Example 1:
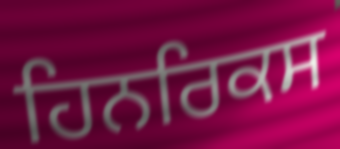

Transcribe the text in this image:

ਹਿਨਰਿਕਸ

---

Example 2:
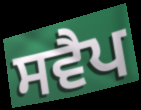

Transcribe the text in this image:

ਸਵੈਪ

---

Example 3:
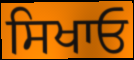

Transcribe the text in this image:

ਸਿਖਾਓ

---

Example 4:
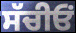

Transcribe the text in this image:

ਸੱਚੀਓਂ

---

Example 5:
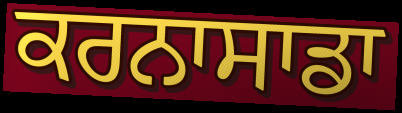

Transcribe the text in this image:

ਕਰਨਾਸਾਡਾ